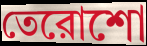
তেরোশো